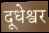
दूधेश्वर